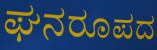
ಘನರೂಪದ